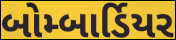
બોમ્બાર્ડિયર